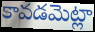
కావడమెట్లా